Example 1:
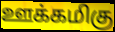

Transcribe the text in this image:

ஊக்கமிகு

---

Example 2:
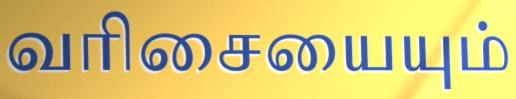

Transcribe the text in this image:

வரிசையையும்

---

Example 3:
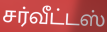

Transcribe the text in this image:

சர்வீட்டஸ்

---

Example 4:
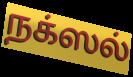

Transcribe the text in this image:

நக்ஸல்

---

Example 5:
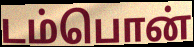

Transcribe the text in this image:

டம்பொன்